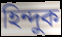
হিন্দুক